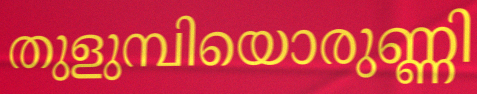
തുളുമ്പിയൊരുണ്ണി